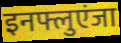
इनफ्लुएंजा